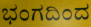
ಭಂಗದಿಂದ